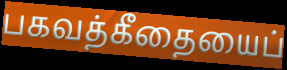
பகவத்கீதையைப்